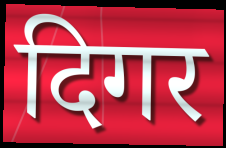
दिगर